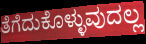
ತೆಗೆದುಕೊಳ್ಳುವುದಲ್ಲ